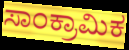
ಸಾಂಕ್ರಾಮಿಕ